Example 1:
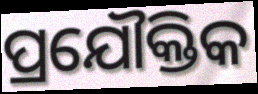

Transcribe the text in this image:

ପ୍ରଯୌକ୍ତିକ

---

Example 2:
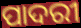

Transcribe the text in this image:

ପାଦରୀ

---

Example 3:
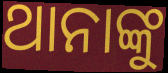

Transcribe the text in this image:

ଥାନାଙ୍କୁ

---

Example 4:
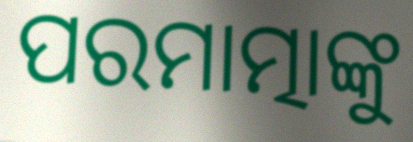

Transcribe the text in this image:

ପରମାତ୍ମାଙ୍କୁ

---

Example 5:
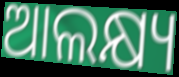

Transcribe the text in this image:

ଆଲକ୍ଷ୍ୟ